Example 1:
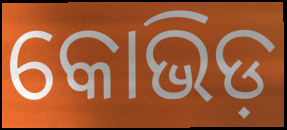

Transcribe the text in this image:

କୋଭିଡ଼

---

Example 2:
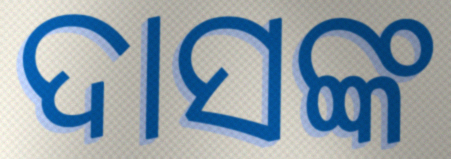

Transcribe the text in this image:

ଦାସଙ୍କ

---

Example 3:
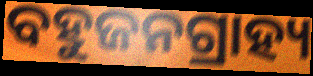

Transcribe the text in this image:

ବହୁଜନଗ୍ରାହ୍ୟ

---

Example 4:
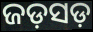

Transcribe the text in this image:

ଜଡ଼ସଡ଼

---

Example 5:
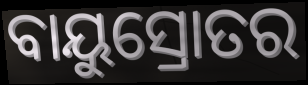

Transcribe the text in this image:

ବାୟୁସ୍ରୋତର